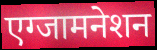
एग्जामनेशन